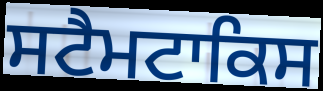
ਸਟੈਮਟਾਕਿਸ